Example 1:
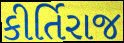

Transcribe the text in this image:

કીર્તિરાજ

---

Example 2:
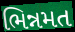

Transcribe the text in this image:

ભિન્નમત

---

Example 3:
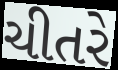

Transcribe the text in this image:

ચીતરે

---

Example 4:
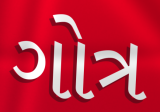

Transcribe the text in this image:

ગોત્ર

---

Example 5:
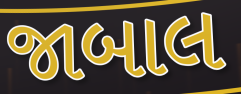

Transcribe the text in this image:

જાબાલ